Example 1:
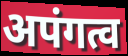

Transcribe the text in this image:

अपंगत्व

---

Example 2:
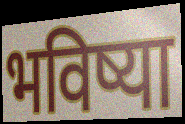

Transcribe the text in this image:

भविष्या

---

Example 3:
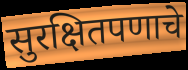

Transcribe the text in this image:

सुरक्षितपणाचे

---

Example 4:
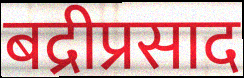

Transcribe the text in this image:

बद्रीप्रसाद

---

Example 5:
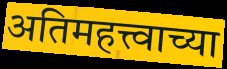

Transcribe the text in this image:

अतिमहत्त्वाच्या